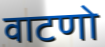
वाटणो